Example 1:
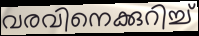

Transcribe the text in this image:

വരവിനെക്കുറിച്ച്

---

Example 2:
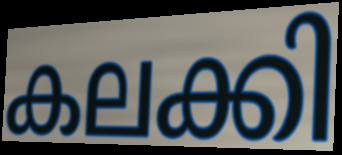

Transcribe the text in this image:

കലക്കി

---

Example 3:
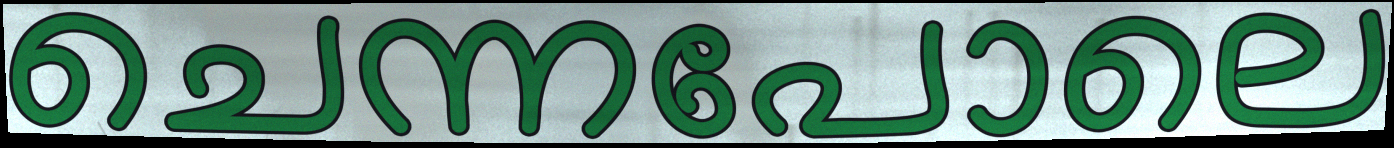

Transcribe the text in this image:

ചെന്നപോലെ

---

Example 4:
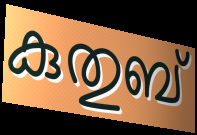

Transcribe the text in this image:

കുതുബ്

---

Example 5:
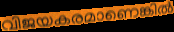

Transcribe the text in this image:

വിജയകരമാണെങ്കിൽ